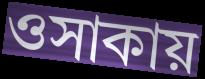
ওসাকায়